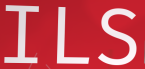
ILS